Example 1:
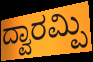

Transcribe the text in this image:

ದ್ವಾರಮ್ಪಿ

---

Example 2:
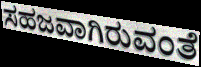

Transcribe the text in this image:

ಸಹಜವಾಗಿರುವಂತೆ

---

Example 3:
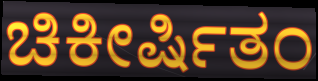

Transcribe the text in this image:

ಚಿಕೀರ್ಷಿತಂ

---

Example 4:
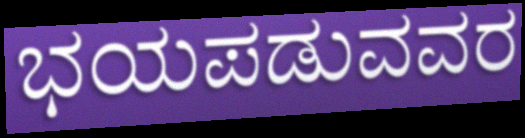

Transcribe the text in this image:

ಭಯಪಡುವವರ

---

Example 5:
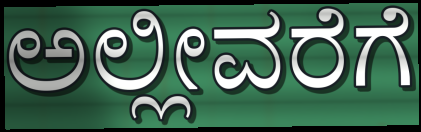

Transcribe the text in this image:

ಅಲ್ಲೀವರೆಗೆ